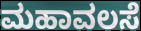
ಮಹಾವಲಸೆ